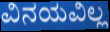
ವಿನಯವಿಲ್ಲ